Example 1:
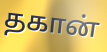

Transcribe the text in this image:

தகான்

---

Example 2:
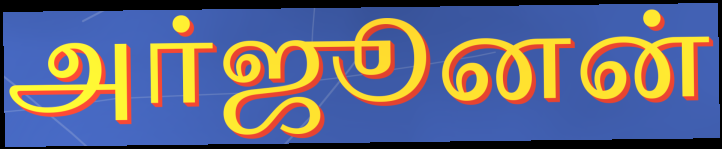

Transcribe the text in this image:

அர்ஜூனன்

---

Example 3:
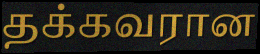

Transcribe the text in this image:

தக்கவரான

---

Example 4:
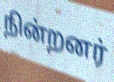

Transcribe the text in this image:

நின்றனர்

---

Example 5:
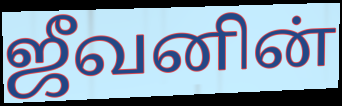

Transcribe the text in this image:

ஜீவனின்